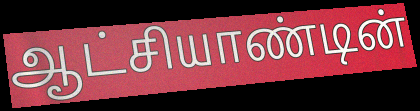
ஆட்சியாண்டின்